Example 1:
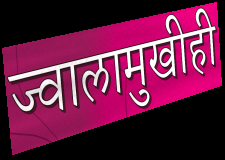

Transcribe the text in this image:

ज्वालामुखीही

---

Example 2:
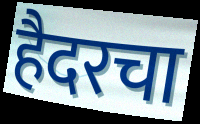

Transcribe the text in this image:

हैदरचा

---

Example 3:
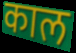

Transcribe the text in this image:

काल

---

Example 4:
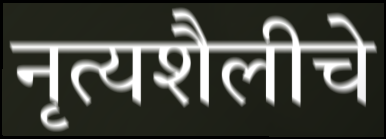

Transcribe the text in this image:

नृत्यशैलीचे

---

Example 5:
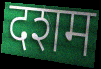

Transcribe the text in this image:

दशम